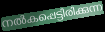
നൽകപ്പെട്ടിരിക്കുന്ന